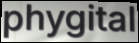
phygital